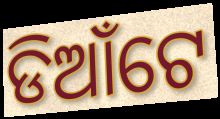
ଡିଆଁଟେ